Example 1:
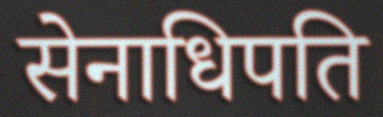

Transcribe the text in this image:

सेनाधिपति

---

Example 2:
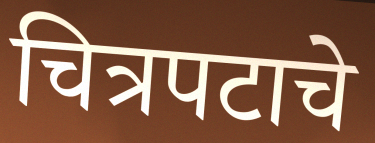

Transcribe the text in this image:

चित्रपटाचे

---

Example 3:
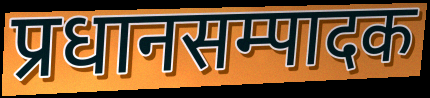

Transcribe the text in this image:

प्रधानसम्पादक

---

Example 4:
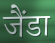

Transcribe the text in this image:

जैंडा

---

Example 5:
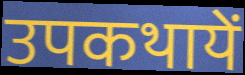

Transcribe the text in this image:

उपकथायें